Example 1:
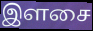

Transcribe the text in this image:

இளசை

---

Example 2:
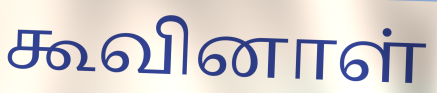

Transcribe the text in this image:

கூவினாள்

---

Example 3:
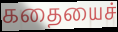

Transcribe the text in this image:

கதையைச்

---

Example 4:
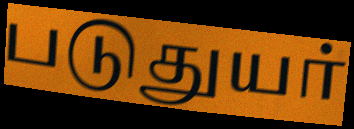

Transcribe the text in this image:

படுதுயர்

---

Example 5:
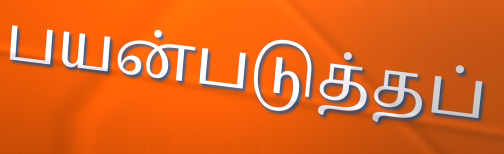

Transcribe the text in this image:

பயன்படுத்தப்